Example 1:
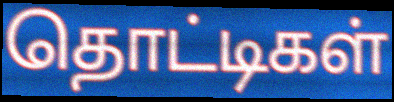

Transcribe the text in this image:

தொட்டிகள்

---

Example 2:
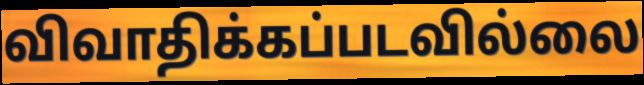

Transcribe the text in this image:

விவாதிக்கப்படவில்லை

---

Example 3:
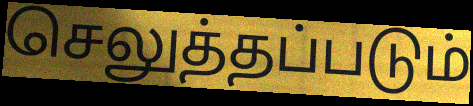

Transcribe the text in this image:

செலுத்தப்படும்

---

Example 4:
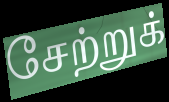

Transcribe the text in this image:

சேற்றுக்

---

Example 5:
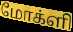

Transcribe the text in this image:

மோக்ளி